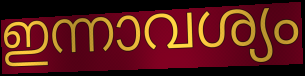
ഇന്നാവശ്യം